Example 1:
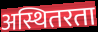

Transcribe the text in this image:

अस्थितरता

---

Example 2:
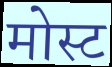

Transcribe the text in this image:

मोस्ट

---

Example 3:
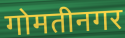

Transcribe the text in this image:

गोमतीनगर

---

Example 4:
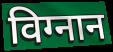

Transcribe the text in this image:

विग्नान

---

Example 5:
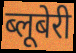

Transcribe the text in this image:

ब्लूबेरी